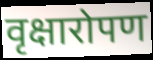
वृक्षारोपण